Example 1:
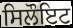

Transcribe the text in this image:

ਸਿਲੌਇਟ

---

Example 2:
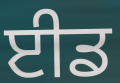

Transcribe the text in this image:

ਈਡ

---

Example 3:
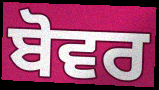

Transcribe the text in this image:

ਬੋਵਰ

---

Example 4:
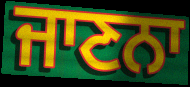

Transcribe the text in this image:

ਜਾਣਨਾ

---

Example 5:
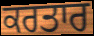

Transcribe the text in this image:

ਕਰਤਾਰ